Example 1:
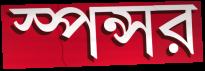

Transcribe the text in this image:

স্পন্সর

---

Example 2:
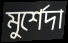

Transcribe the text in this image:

মুর্শেদা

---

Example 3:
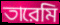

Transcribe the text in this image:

তারেমি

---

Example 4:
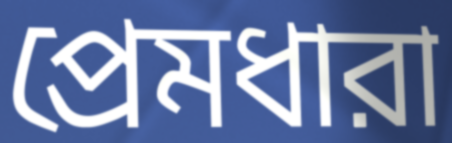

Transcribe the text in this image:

প্রেমধারা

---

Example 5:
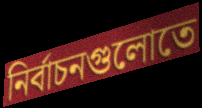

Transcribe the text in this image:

নির্বাচনগুলোতে